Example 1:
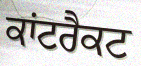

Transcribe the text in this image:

ਕਾਂਟਰੈਕਟ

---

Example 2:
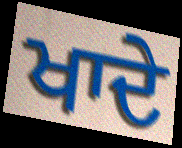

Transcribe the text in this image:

ਖਾਦੇ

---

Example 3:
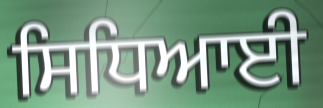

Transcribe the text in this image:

ਸਿਧਿਆਈ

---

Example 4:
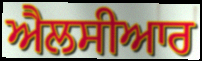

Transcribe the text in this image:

ਐਲਸੀਆਰ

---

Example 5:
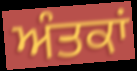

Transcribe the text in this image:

ਅੰਤਕਾਂ